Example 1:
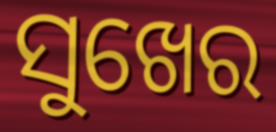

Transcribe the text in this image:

ସୁଖେର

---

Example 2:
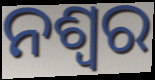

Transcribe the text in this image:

ନଶ୍ଵର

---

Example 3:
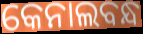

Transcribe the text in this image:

କେନାଲବନ୍ଧ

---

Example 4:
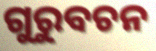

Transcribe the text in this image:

ଗୁରୁବଚନ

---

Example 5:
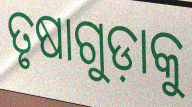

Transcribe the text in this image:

ତୃଷାଗୁଡ଼ାକୁ